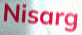
Nisarg